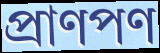
প্রাণপণ